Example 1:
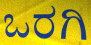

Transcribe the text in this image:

ಒರಗಿ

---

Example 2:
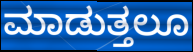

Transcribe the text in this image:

ಮಾಡುತ್ತಲೂ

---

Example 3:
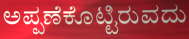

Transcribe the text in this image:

ಅಪ್ಪಣೆಕೊಟ್ಟಿರುವದು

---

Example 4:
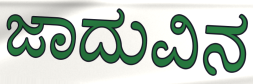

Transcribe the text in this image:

ಜಾದುವಿನ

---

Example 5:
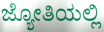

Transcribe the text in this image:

ಜ್ಯೋತಿಯಲ್ಲಿ